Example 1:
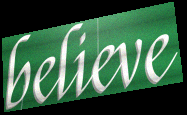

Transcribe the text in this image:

believe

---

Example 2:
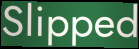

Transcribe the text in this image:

Slipped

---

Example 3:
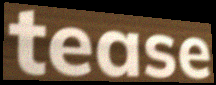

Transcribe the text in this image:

tease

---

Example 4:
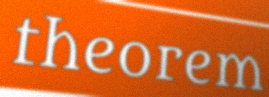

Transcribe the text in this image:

theorem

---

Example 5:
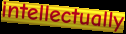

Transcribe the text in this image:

intellectually